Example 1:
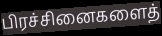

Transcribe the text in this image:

பிரச்சினைகளைத்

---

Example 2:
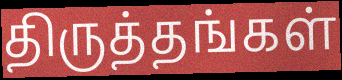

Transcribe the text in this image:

திருத்தங்கள்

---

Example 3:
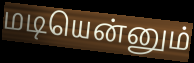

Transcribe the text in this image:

மடியென்னும்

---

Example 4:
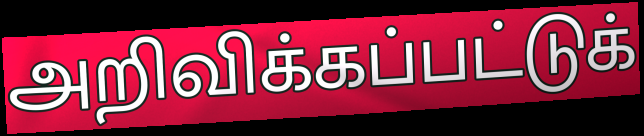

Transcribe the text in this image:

அறிவிக்கப்பட்டுக்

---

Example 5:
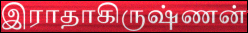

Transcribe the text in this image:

இராதாகிருஷ்ணன்